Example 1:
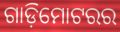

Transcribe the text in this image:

ଗାଡ଼ିମୋଟରର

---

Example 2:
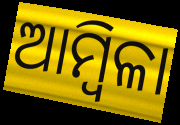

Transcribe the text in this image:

ଆମ୍ବିଳା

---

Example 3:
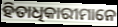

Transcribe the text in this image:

ହିତାଧିକାରୀମାନେ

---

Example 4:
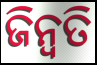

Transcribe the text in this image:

ଜିନ୍ୱତି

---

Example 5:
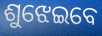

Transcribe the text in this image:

ଶୁଝେଇବେ